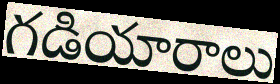
గడియారాలు